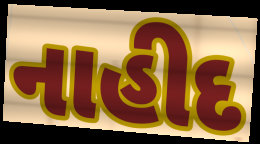
નાહીદ